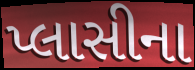
પ્લાસીના